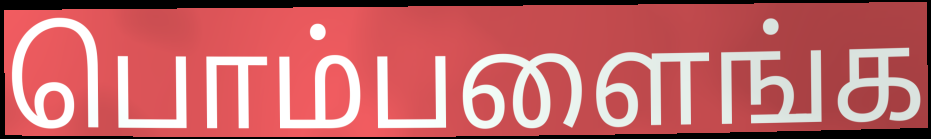
பொம்பளைங்க